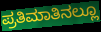
ಪ್ರತಿಮಾತಿನಲ್ಲೂ